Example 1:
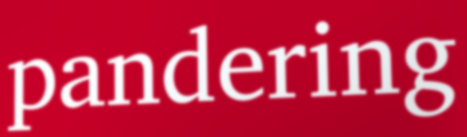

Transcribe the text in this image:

pandering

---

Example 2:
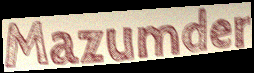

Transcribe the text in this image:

Mazumder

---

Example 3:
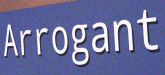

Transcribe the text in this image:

Arrogant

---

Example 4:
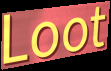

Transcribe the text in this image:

Loot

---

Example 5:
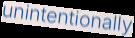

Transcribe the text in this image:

unintentionally